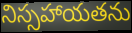
నిస్సహాయతను